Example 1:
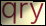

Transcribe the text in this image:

qry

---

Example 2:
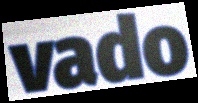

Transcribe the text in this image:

vado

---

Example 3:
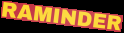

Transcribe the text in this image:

RAMINDER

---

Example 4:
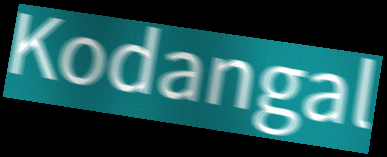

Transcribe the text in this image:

Kodangal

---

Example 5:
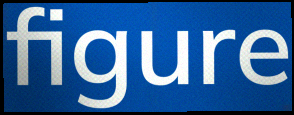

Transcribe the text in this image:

figure